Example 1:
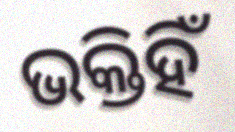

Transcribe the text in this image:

ଭକ୍ତିହିଁ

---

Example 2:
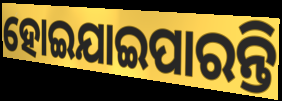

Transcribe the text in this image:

ହୋଇଯାଇପାରନ୍ତି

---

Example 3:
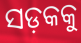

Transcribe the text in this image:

ସଡ଼କକୁ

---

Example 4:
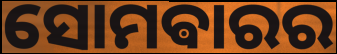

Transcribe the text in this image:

ସୋମଵାରର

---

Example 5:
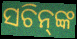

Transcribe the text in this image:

ସଚିନ୍‌ଙ୍କ